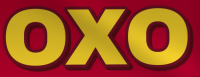
OXO